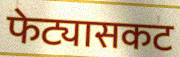
फेट्यासकट